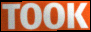
TOOK